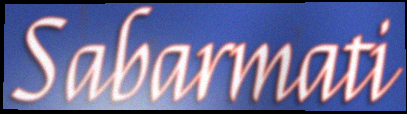
Sabarmati